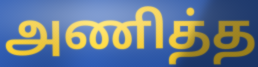
அணித்த